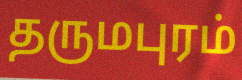
தருமபுரம்